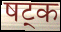
षट्क